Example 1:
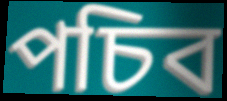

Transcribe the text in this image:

পচিব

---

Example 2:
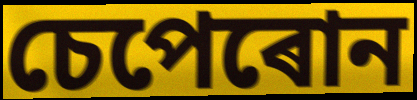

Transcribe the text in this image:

চেপেৰোন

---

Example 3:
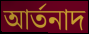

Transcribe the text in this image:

আৰ্তনাদ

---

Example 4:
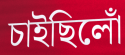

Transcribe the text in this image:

চাইছিলোঁ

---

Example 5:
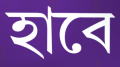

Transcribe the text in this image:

হাবে